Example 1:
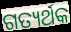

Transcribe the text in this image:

ଗତ୍ୟର୍ଥକ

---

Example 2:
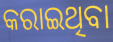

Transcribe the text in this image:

କରାଇଥିବା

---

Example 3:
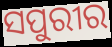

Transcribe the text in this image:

ସପୁରୀର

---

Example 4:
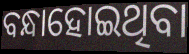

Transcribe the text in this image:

ବନ୍ଧାହୋଇଥିବା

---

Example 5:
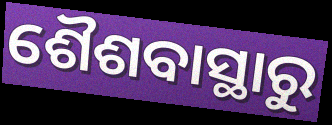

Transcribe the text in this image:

ଶୈଶବାସ୍ଥାରୁ